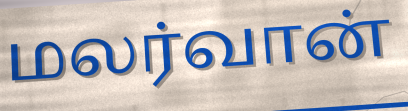
மலர்வான்